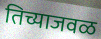
तिच्याजवळ